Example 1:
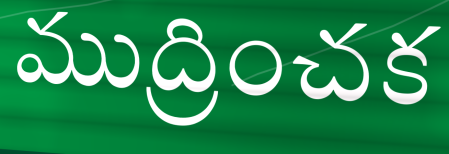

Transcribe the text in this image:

ముద్రించక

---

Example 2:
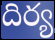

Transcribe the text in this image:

దిర్య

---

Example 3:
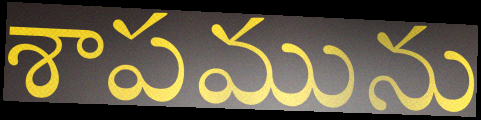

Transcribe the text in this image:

శాపమును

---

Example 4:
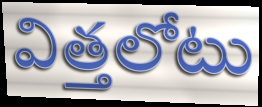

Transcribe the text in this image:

విత్తలోటు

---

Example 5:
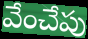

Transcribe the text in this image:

వేంచేపు